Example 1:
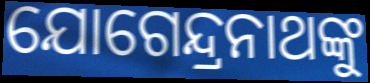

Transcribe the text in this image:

ଯୋଗେନ୍ଦ୍ରନାଥଙ୍କୁ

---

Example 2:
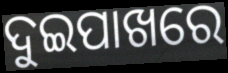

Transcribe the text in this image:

ଦୁଇପାଖରେ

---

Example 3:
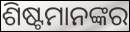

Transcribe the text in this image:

ଶିଷ୍ଟମାନଙ୍କର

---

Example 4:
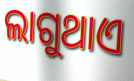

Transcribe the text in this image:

ଲାଗୁଥାଏ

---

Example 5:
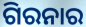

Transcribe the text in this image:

ଗିରନାର